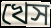
খেস